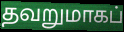
தவறுமாகப்